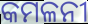
କମଳନୀ